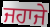
ਜਹਾਜੇ